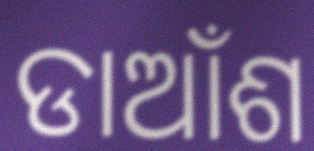
ଡାଆଁଶ